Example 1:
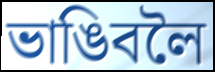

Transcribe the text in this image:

ভাঙিবলৈ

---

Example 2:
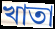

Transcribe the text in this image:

খাতা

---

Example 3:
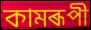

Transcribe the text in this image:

কামৰূপী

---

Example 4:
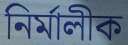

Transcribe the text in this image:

নিৰ্মালীক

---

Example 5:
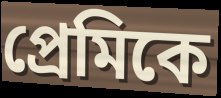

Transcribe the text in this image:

প্ৰেমিকে